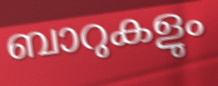
ബാറുകളും